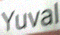
Yuval